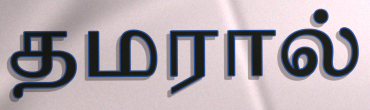
தமரால்